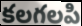
కలగలపి